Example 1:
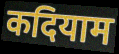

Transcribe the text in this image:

कदियाम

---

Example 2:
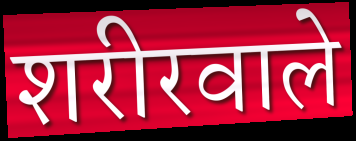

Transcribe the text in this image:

शरीरवाले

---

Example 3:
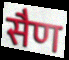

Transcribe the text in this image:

सैण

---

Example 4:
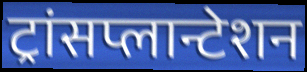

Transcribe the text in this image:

ट्रांसप्लान्टेशन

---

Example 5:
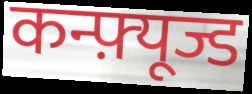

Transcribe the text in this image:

कन्फ़्यूज्ड